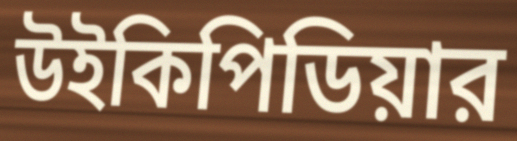
উইকিপিডিয়ার